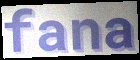
fana